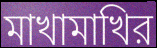
মাখামাখির